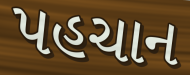
પહચાન